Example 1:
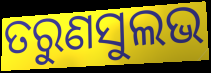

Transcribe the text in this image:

ତରୁଣସୁଲଭ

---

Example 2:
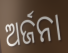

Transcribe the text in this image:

ଅର୍ଜନା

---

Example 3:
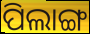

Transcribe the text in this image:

ପିଲାଙ୍ଗ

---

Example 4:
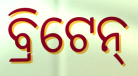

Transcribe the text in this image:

ବ୍ରିଟେନ୍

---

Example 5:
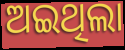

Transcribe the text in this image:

ଅଇଥିଲା